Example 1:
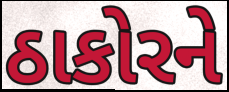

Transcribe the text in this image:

ઠાકોરને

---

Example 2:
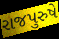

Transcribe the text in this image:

રાજપુરુષે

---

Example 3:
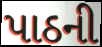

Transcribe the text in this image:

પાઠની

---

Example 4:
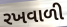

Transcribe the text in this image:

રખવાળી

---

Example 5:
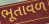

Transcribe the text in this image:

ભૂતાવળ